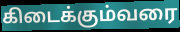
கிடைக்கும்வரை